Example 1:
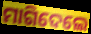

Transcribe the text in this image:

ମାଗିଦେଲେ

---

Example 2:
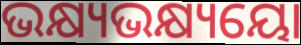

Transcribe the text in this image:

ଭକ୍ଷ୍ୟଭକ୍ଷ୍ୟୟୋ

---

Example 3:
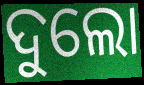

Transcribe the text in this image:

ଦୁଲୋ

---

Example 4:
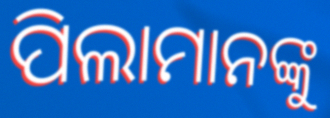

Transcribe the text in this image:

ପିଲାମାନଙ୍କୁ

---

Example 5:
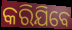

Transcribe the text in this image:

କରିଯିବେ